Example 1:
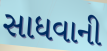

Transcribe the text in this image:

સાધવાની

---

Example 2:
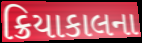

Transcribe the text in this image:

ક્રિયાકાલના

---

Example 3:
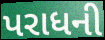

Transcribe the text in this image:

પરાધની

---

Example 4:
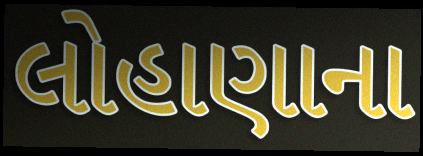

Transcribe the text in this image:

લોહાણાના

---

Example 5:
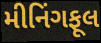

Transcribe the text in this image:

મીનિંગફૂલ